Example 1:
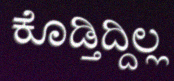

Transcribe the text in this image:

ಕೊಡ್ತಿದ್ದಿಲ್ಲ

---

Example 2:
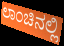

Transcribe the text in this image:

ಲಾಂಚಿನಲ್ಲಿ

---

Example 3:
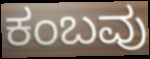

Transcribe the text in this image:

ಕಂಬವು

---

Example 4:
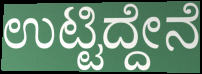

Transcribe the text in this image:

ಉಟ್ಟಿದ್ದೇನೆ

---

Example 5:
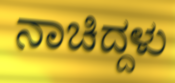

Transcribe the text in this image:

ನಾಚಿದ್ದಳು